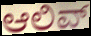
ಆಲಿವ್